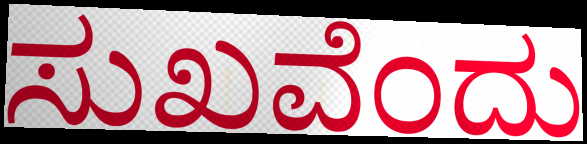
ಸುಖವೆಂದು